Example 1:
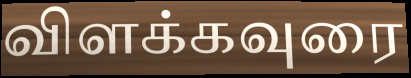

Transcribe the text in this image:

விளக்கவுரை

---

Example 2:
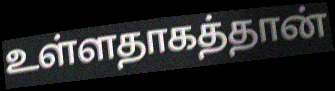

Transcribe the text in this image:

உள்ளதாகத்தான்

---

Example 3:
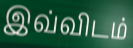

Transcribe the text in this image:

இவ்விடம்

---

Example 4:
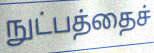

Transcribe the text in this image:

நுட்பத்தைச்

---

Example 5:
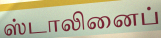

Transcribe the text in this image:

ஸ்டாலினைப்